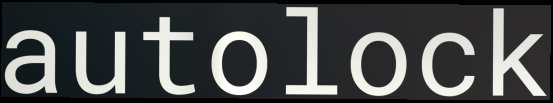
autolock